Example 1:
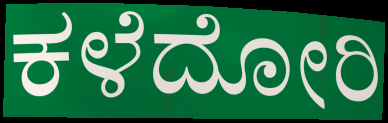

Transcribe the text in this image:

ಕಳೆದೋರಿ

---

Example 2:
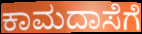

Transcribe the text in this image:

ಕಾಮದಾಸೆಗೆ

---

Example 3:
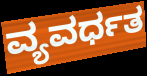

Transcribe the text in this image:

ವ್ಯವರ್ಧತ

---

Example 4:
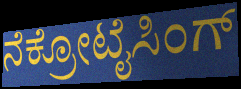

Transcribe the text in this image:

ನೆಕ್ರೋಟೈಸಿಂಗ್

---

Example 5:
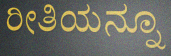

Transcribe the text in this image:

ರೀತಿಯನ್ನೂ